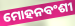
ମୋହନବଂଶୀ